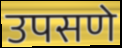
उपसणे